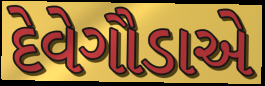
દેવેગૌડાએ